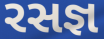
રસજ્ઞ